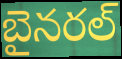
బైనరల్